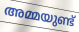
അമ്മയുണ്ട്